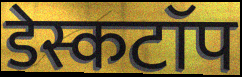
डेस्‍कटॉप